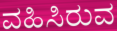
ವಹಿಸಿರುವ